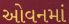
ઓવનમાં